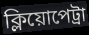
ক্লিয়োপেট্রা